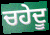
ਚਹੇਦੂ